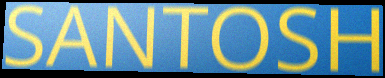
SANTOSH